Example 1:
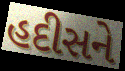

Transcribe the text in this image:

હદીસને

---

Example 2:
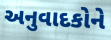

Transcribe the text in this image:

અનુવાદકોને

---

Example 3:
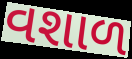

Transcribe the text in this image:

વશાળ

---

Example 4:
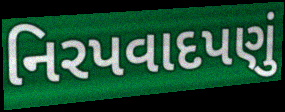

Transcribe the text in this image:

નિરપવાદપણું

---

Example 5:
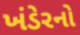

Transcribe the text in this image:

ખંડેરનો